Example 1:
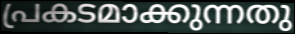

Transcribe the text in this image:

പ്രകടമാക്കുന്നതു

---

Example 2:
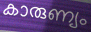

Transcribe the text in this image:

കാരുണ്യം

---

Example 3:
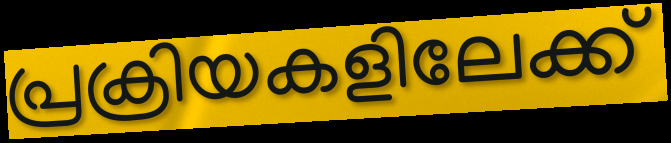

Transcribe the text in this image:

പ്രക്രിയകളിലേക്ക്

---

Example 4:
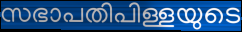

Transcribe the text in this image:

സഭാപതിപിള്ളയുടെ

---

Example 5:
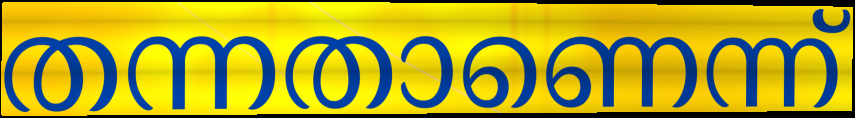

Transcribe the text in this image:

തന്നതാണെന്ന്